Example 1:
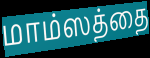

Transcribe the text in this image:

மாம்ஸத்தை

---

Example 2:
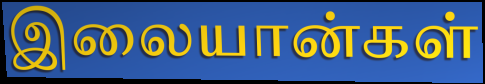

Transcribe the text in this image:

இலையான்கள்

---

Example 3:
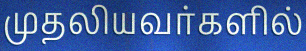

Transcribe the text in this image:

முதலியவர்களில்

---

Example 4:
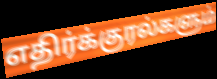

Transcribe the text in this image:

எதிர்க்குரல்களும்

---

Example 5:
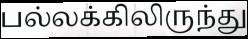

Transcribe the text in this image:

பல்லக்கிலிருந்து